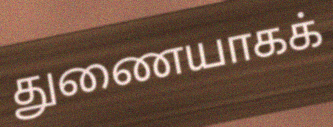
துணையாகக்